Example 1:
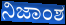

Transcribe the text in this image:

ನಿಜಾಂಶ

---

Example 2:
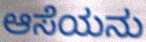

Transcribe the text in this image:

ಆಸೆಯನು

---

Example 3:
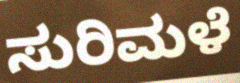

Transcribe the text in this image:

ಸುರಿಮಳೆ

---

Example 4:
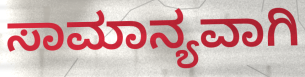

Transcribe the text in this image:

ಸಾಮಾನ್ಯವಾಗಿ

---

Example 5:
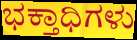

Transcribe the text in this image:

ಭಕ್ತಾಧಿಗಳು